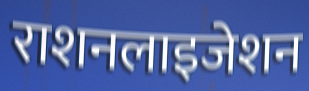
राशनलाइजेशन